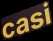
casi